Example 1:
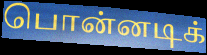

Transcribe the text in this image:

பொன்னடிக்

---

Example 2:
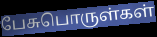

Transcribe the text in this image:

பேசுபொருள்கள்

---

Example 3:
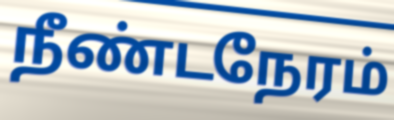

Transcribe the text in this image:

நீண்டநேரம்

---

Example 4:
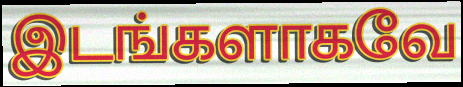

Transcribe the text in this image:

இடங்களாகவே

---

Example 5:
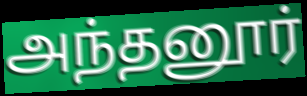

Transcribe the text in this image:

அந்தனூர்